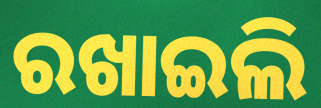
ରଖାଇଲି